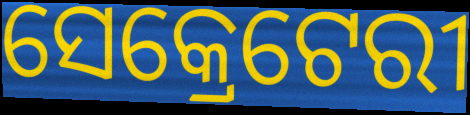
ସେକ୍ରେଟେରୀ